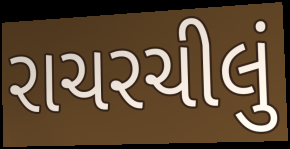
રાચરચીલું